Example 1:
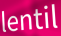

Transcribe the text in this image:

lentil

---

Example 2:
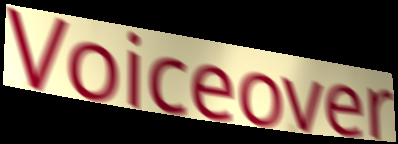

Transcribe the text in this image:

Voiceover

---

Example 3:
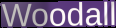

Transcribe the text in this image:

Woodall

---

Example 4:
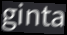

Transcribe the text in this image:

ginta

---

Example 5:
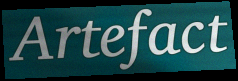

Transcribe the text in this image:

Artefact